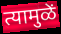
त्यामुळें